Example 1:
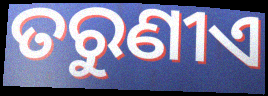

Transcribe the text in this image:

ତରୁଣୀଏ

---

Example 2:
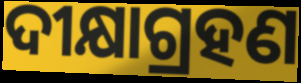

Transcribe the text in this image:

ଦୀକ୍ଷାଗ୍ରହଣ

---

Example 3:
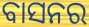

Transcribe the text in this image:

ବାସନର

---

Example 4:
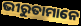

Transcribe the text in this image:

ଭୀରୁତାମାନେ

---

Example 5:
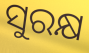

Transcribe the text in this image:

ସୁରକ୍ଷ